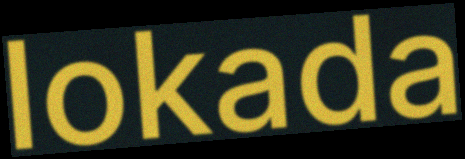
lokada